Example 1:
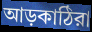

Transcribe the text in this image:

আড়কাঠিরা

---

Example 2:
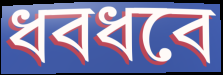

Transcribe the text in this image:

ধবধবে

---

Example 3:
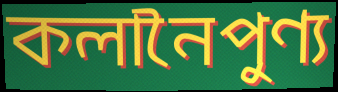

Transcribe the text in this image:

কলানৈপুণ্য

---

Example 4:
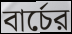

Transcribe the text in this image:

বার্চের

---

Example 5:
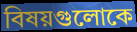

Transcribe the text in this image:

বিষয়গুলোকে